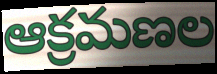
ఆక్రమణల